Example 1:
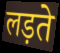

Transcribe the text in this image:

लड़ते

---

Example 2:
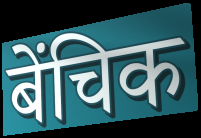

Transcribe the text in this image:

बेंचिक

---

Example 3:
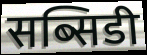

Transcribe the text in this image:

सब्सिडी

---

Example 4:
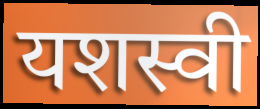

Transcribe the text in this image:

यशस्‍वी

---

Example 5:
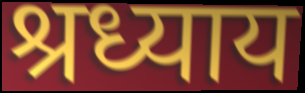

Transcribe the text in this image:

श्रध्याय